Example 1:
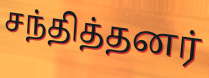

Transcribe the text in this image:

சந்தித்தனர்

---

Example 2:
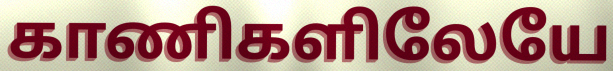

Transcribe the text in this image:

காணிகளிலேயே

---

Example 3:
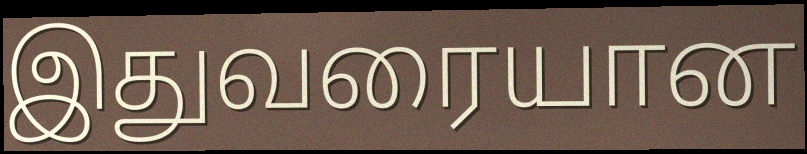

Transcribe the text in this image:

இதுவரையான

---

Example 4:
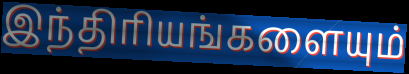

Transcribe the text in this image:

இந்திரியங்களையும்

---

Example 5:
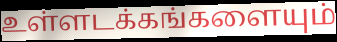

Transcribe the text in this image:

உள்ளடக்கங்களையும்